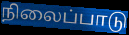
நிலைப்பாடு